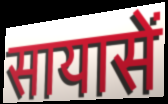
सायासें